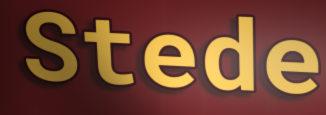
Stede